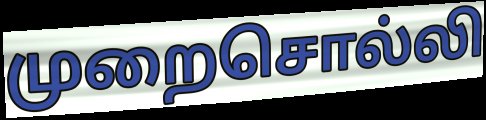
முறைசொல்லி